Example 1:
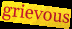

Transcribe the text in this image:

grievous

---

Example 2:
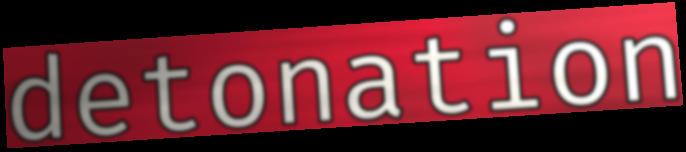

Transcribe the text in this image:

detonation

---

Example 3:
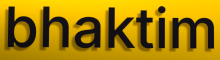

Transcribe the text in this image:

bhaktim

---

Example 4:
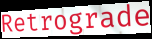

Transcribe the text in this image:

Retrograde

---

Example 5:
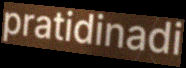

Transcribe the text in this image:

pratidinadi